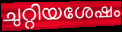
ചുറ്റിയശേഷം